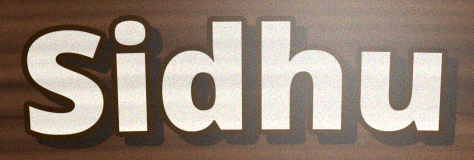
Sidhu